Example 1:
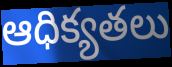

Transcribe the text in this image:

ఆధిక్యతలు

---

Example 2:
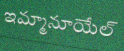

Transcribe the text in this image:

ఇమ్మానూయేల్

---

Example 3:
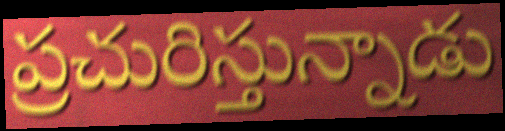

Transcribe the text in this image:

ప్రచురిస్తున్నాడు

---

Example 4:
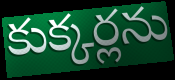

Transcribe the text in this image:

కుక్కర్లను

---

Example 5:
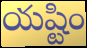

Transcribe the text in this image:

యష్టిం